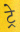
ट्रे